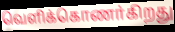
வெளிக்கொணர்கிறது